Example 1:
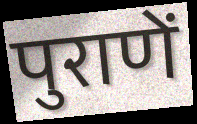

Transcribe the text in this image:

पुराणें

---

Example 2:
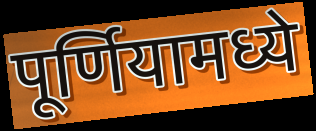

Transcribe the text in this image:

पूर्णियामध्ये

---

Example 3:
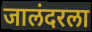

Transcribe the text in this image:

जालंदरला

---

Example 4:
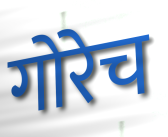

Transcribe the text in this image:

गोरेच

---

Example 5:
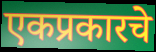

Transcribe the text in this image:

एकप्रकारचे